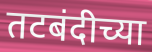
तटबंदीच्या